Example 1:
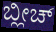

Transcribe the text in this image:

ಬ್ಲೀಚ್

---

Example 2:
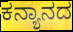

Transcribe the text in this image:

ಕನ್ಯಾನದ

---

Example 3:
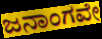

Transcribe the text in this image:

ಜನಾಂಗವೇ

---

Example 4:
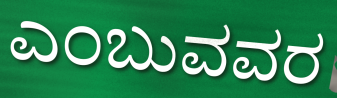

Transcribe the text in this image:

ಎಂಬುವವರ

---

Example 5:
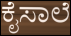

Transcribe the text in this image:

ಕೈಸಾಲೆ